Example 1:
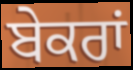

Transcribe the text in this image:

ਬੇਕਰਾਂ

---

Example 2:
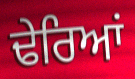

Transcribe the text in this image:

ਢੇਰਿਆਂ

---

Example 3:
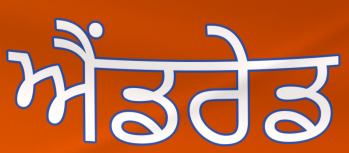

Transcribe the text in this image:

ਐਂਡਰੇਡ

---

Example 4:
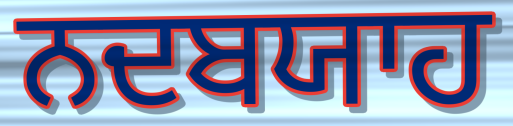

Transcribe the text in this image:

ਨਦਬਯਾਹ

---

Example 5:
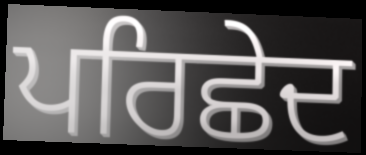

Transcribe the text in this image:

ਪਰਿਛੇਦ